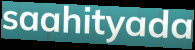
saahityada